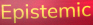
Epistemic